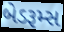
બેડરૂમ્સ